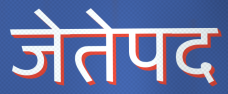
जेतेपद